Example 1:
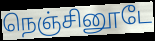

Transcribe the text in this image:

நெஞ்சினூடே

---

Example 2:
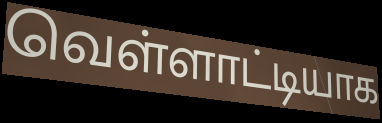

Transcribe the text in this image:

வெள்ளாட்டியாக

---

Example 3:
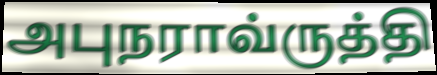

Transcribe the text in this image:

அபுநராவ்ருத்தி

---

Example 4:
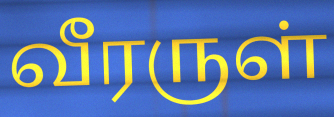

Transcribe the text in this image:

வீரருள்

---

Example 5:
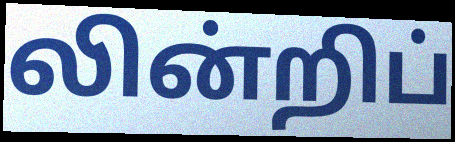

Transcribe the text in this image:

லின்றிப்